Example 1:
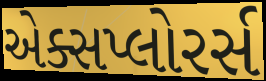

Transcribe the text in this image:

એક્સપ્લોરર્સ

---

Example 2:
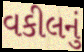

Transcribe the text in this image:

વકીલનું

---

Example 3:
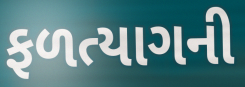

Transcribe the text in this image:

ફળત્યાગની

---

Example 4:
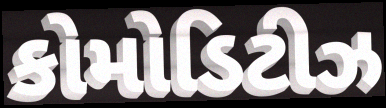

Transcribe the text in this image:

કોમોડિટીઝ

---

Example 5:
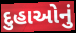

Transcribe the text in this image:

દુહાઓનું